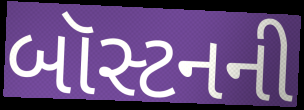
બૉસ્ટનની